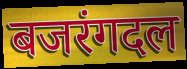
बजरंगदल